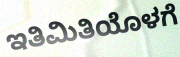
ಇತಿಮಿತಿಯೊಳಗೆ